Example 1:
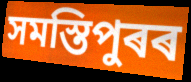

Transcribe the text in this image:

সমস্তিপুৰৰ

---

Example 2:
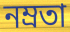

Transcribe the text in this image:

নম্ৰতা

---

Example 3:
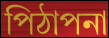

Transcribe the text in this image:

পিঠাপনা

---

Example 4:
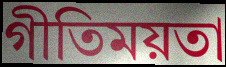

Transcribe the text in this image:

গীতিময়তা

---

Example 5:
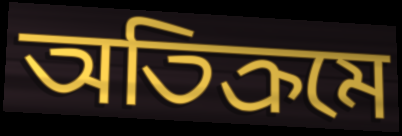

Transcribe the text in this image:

অতিক্ৰমে